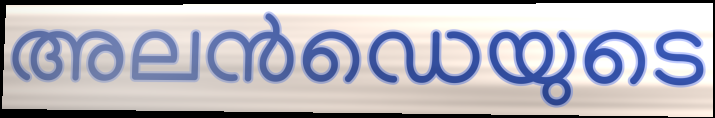
അലൻഡെയുടെ